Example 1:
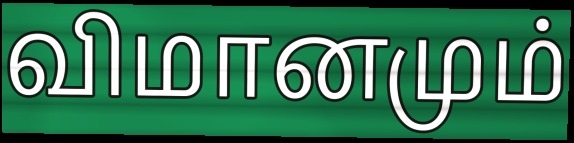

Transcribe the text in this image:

விமானமும்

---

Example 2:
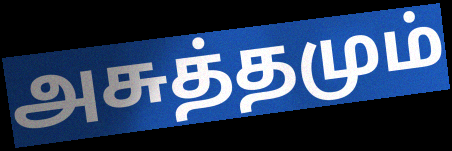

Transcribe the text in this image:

அசுத்தமும்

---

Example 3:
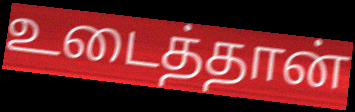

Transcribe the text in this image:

உடைத்தான்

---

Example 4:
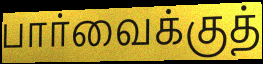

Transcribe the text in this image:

பார்வைக்குத்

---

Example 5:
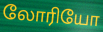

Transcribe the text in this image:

லோரியோ